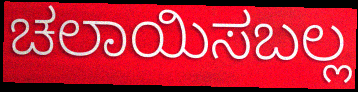
ಚಲಾಯಿಸಬಲ್ಲ